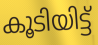
കൂടിയിട്ട്